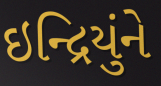
ઇન્દ્રિયુંને